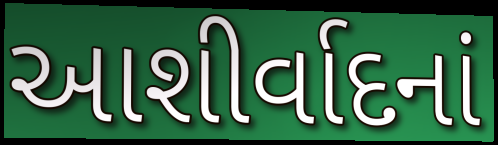
આશીર્વાદનાં